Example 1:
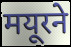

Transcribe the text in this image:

मयूरने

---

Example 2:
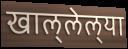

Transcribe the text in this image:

खाल्लेल्या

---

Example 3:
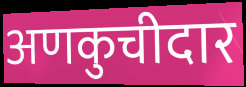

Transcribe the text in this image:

अणकुचीदार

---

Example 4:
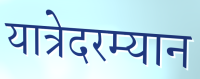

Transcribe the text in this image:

यात्रेदरम्यान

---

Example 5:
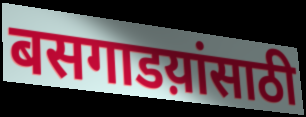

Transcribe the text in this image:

बसगाडय़ांसाठी